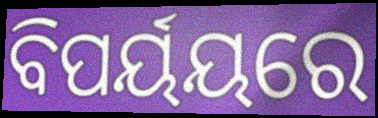
ବିପର୍ୟୟରେ